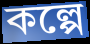
কল্পে